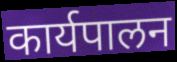
कार्यपालन